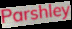
Parshley